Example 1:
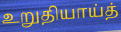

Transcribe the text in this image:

உறுதியாய்த்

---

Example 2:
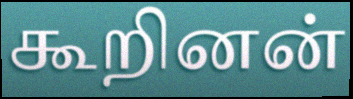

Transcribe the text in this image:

கூறினன்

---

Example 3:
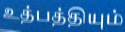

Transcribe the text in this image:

உத்பத்தியும்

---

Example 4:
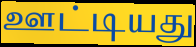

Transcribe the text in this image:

ஊட்டியது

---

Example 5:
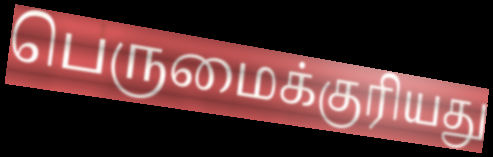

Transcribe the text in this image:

பெருமைக்குரியது